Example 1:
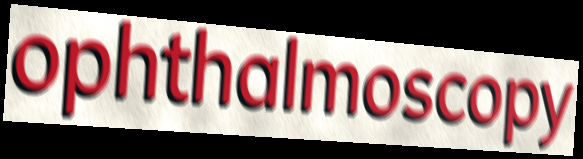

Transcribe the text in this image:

ophthalmoscopy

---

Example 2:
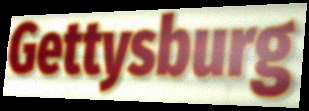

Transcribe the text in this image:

Gettysburg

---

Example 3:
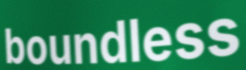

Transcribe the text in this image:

boundless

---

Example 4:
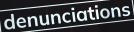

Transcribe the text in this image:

denunciations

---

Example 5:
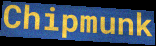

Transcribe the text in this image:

Chipmunk